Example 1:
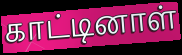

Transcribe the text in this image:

காட்டினாள்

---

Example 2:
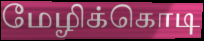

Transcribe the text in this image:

மேழிக்கொடி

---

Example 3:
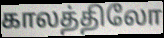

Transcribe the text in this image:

காலத்திலோ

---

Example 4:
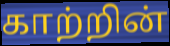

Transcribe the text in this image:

காற்றின்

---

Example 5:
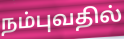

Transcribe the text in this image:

நம்புவதில்